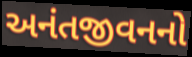
અનંતજીવનનો